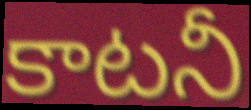
కాటనీ